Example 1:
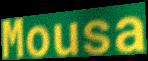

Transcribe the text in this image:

Mousa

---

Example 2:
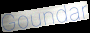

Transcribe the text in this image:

Goundar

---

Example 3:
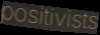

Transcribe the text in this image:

positivists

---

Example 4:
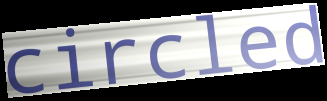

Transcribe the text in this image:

circled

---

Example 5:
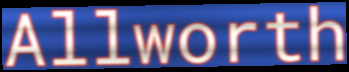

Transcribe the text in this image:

Allworth